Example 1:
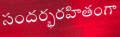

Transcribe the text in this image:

సందర్భరహితంగా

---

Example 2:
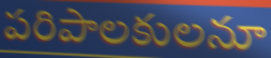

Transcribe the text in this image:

పరిపాలకులనూ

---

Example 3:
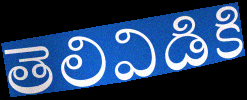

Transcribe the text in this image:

తెలివిడికి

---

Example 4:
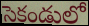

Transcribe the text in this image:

సెకండులో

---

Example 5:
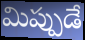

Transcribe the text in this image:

మిప్పుడే